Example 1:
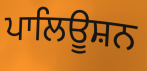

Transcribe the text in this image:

ਪਾਲਿਊਸ਼ਨ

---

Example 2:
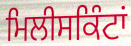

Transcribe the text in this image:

ਮਿਲੀਸਕਿੰਟਾਂ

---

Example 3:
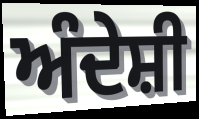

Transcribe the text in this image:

ਅੰਦੇਸ਼ੀ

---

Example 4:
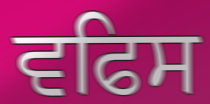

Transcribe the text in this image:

ਵਫਿਸ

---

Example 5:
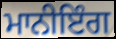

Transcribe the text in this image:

ਮਾਨੀਇੰਗ